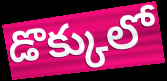
డొక్కులో